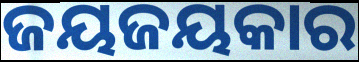
ଜୟଜୟକାର